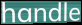
handle